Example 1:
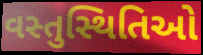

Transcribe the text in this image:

વસ્તુસ્થિતિઓ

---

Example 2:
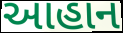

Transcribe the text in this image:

આહાન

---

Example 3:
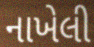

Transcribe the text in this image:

નાખેલી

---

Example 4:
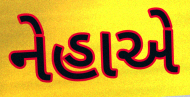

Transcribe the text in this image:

નેહાએ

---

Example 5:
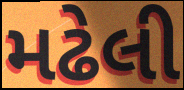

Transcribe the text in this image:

મઢેલી